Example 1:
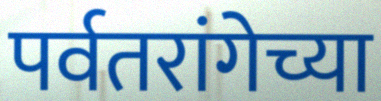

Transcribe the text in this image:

पर्वतरांगेच्या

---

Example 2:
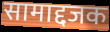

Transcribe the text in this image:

सामाद्दजक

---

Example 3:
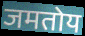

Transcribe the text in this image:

जमतोय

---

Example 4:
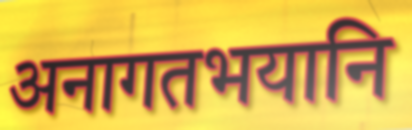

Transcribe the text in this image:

अनागतभयानि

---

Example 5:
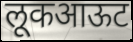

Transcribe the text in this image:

लूकआऊट